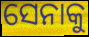
ସେନାକୁ